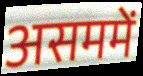
असममें